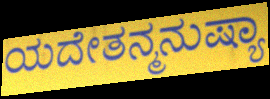
ಯದೇತನ್ಮನುಷ್ಯಾ